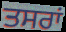
ਤਸਰਾਂ